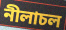
নীলাচল